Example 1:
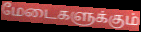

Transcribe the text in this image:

மேடைகளுக்கும்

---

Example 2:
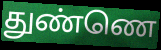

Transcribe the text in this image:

துண்ணெ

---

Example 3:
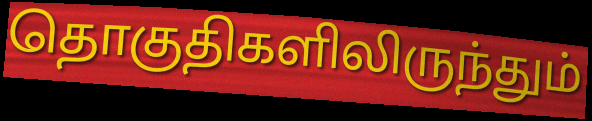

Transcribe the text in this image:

தொகுதிகளிலிருந்தும்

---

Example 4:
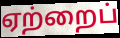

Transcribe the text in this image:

ஏற்றைப்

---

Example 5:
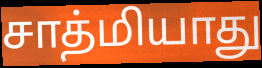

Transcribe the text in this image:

சாத்மியாது